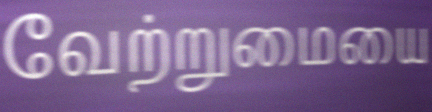
வேற்றுமையை